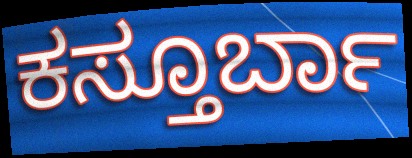
ಕಸ್ತೂರ್ಬಾ